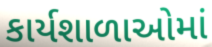
કાર્યશાળાઓમાં